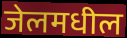
जेलमधील